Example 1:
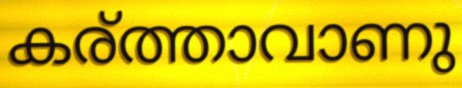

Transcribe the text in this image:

കര്ത്താവാണു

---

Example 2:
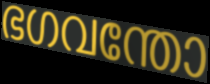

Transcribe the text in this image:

ഭഗവന്തോ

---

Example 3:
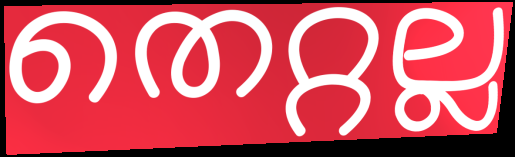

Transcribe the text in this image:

തെറ്റല്ല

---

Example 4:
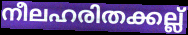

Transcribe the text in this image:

നീലഹരിതക്കല്ല്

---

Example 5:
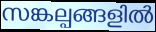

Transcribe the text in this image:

സങ്കല്പങ്ങളിൽ